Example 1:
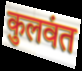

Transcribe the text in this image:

कुलवंत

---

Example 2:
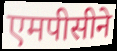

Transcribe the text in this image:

एमपीसीने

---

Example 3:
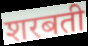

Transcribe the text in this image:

शरबती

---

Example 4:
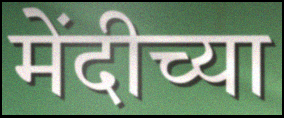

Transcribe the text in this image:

मेंदीच्या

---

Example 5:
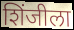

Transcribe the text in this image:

शिंजीला